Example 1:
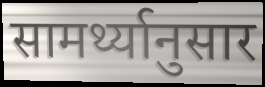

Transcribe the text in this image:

सामर्थ्यानुसार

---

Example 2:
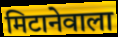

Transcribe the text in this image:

मिटानेवाला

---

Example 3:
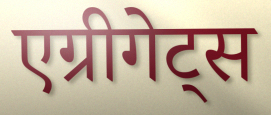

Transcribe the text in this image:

एग्रीगेट्स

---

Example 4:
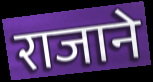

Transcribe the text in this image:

राजाने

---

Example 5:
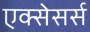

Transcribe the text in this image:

एक्सेसर्स